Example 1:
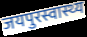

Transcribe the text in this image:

जयपुरस्वास्थ्य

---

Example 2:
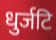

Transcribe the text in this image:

धुर्जटि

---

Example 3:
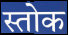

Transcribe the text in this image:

स्तोक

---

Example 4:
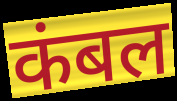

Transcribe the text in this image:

कंबल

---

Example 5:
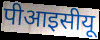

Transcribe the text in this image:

पीआइसीयू